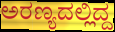
ಅರಣ್ಯದಲ್ಲಿದ್ದ